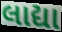
લાદ્યા